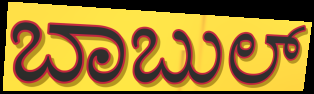
ಬಾಬುಲ್